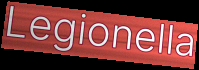
Legionella